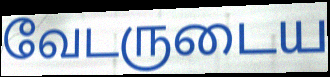
வேடருடைய